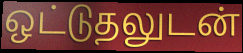
ஒட்டுதலுடன்